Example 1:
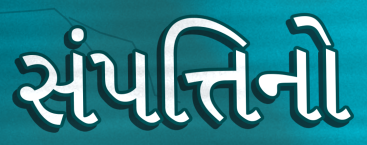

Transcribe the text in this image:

સંપત્તિનો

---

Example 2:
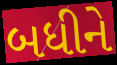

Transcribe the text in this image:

બધીને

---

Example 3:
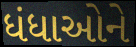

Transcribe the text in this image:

ધંધાઓને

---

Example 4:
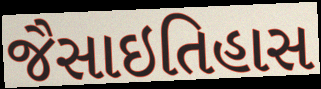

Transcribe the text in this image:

જૈસાઇતિહાસ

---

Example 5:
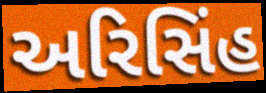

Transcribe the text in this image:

અરિસિંહ